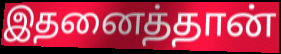
இதனைத்தான்